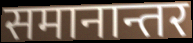
समानान्तर